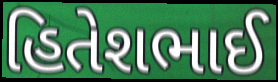
હિતેશભાઈ